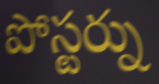
పోస్టర్ను